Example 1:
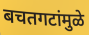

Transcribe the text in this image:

बचतगटांमुळे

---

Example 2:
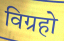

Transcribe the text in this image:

विग्रहो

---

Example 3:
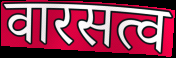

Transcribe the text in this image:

वारसत्व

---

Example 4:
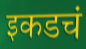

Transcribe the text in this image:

इकडचं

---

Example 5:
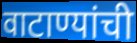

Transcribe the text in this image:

वाटाण्यांची